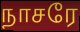
நாசரே